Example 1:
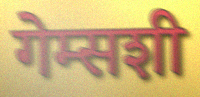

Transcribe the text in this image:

गेम्सशी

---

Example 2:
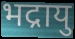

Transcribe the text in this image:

भद्रायु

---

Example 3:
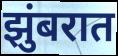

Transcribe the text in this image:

झुंबरात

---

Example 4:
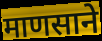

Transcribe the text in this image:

माणसाने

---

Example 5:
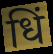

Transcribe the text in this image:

धिं